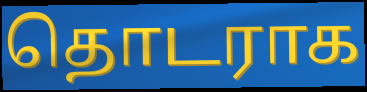
தொடராக